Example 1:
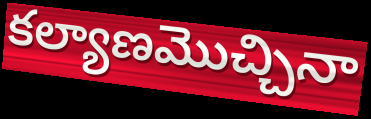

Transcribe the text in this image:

కల్యాణమొచ్చినా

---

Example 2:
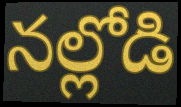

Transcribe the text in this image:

నల్లోడి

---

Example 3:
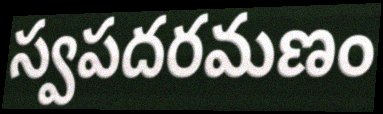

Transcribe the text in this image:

స్వపదరమణం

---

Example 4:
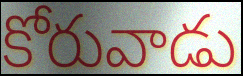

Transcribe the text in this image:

కోరువాడు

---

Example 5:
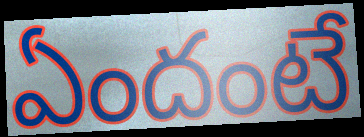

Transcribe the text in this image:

ఏందంటే